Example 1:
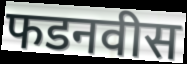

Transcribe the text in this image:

फडनवीस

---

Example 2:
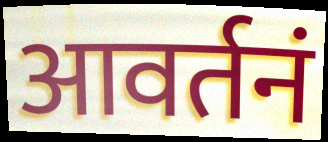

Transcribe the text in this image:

आवर्तनं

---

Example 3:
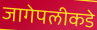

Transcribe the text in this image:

जागेपलीकडे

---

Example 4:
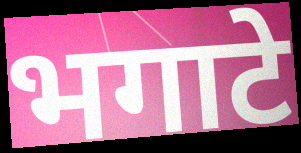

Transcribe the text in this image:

भगाटे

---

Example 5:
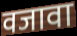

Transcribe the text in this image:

वजावा